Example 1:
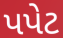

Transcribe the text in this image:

પપેટ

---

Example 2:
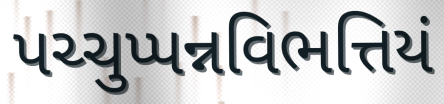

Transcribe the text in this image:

પચ્ચુપ્પન્નવિભત્તિયં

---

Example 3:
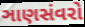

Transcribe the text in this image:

ઞાણસંવરો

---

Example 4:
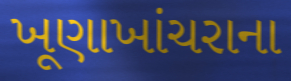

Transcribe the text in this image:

ખૂણાખાંચરાના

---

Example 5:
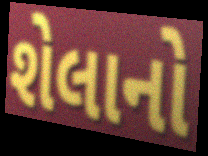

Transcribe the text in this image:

શેલાનો